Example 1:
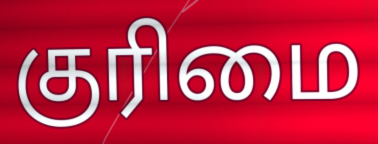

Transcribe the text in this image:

குரிமை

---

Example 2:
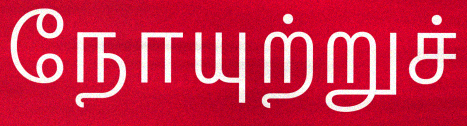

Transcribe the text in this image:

நோயுற்றுச்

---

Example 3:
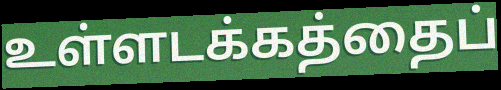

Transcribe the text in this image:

உள்ளடக்கத்தைப்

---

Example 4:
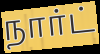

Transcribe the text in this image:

நார்ட்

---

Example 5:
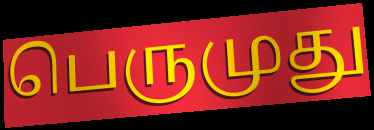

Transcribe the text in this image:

பெருமுது